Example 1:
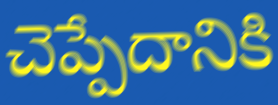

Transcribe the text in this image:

చెప్పేదానికి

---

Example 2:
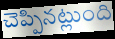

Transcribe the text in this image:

చెప్పినట్లుంది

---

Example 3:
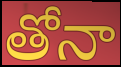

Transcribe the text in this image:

తోనా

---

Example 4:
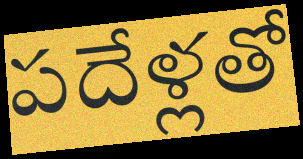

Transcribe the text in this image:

పదేళ్లతో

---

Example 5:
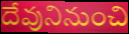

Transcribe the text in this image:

దేవునినుంచి